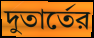
দুতার্তের